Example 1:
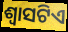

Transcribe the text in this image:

ଶ୍ଵାସଟିଏ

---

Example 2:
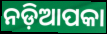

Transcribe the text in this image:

ନଡ଼ିଆପକା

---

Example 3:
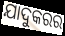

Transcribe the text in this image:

ଯାଦୁକରର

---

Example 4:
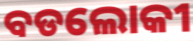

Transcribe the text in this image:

ବଡଲୋକୀ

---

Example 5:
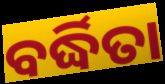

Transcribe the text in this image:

ବର୍ଦ୍ଧିତା